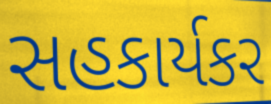
સહકાર્યકર